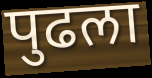
पुढला